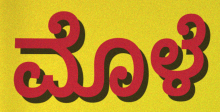
ಮೊಳೆ